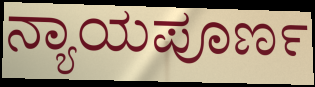
ನ್ಯಾಯಪೂರ್ಣ